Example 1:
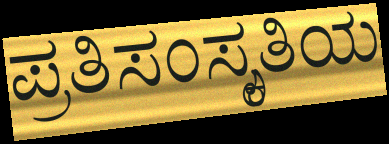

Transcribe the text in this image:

ಪ್ರತಿಸಂಸ್ಕೃತಿಯ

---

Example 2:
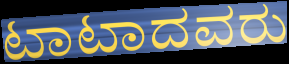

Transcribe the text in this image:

ಟಾಟಾದವರು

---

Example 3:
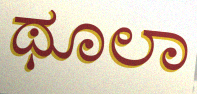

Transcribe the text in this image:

ಥೂಲಾ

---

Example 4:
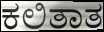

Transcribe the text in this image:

ಕಲಿತಾತ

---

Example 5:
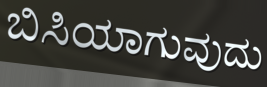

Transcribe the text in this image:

ಬಿಸಿಯಾಗುವುದು